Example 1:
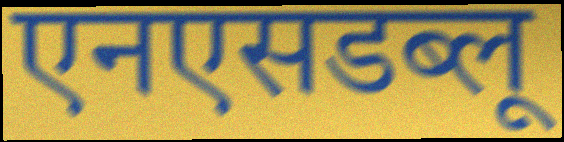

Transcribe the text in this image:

एनएसडब्लू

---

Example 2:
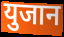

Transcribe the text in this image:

युजान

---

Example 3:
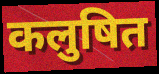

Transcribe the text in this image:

कलुषित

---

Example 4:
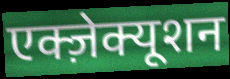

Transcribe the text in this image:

एक्ज़ेक्यूशन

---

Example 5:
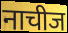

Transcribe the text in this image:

नाचीज